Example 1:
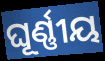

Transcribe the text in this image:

ଘୂର୍ଣ୍ଣୀୟ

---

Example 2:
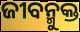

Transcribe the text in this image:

ଜୀବନ୍ମୁକ୍ତ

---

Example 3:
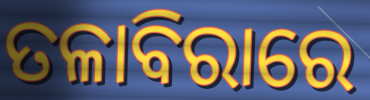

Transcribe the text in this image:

ତଳାବିରାରେ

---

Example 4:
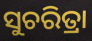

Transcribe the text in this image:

ସୁଚରିତ୍ରା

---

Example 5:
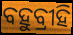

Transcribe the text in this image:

ବହୁବ୍ରୀହି